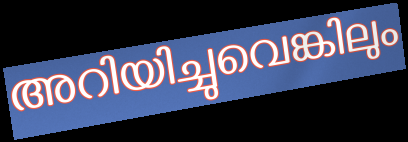
അറിയിച്ചുവെങ്കിലും